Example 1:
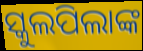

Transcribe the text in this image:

ସ୍କୁଲପିଲାଙ୍କ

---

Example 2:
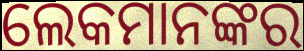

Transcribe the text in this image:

ଲେକମାନଙ୍କର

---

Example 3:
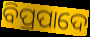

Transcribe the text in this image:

ବିପ୍ରପାଦେ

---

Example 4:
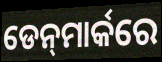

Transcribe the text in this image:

ଡେନ୍‍ମାର୍କରେ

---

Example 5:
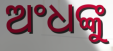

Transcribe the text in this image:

ଅଂଧଙ୍କୁ